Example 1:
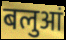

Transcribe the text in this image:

बलुआं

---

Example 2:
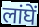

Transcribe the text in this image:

लांघें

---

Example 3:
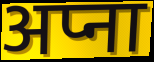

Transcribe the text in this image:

अप्ना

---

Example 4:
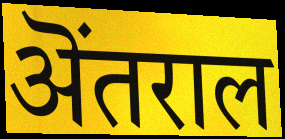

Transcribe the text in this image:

ऄंतराल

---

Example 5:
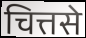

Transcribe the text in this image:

चित्तसे